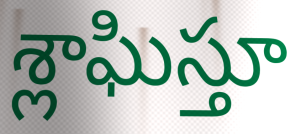
శ్లాఘిస్తూ